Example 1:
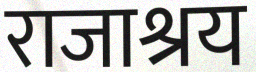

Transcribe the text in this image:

राजाश्रय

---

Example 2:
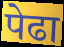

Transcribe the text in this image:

पेढा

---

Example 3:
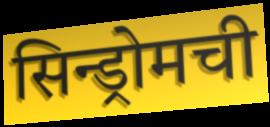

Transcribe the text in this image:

सिन्ड्रोमची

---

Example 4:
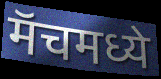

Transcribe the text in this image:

मॅचमध्ये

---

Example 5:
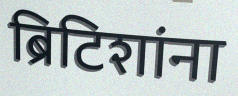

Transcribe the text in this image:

ब्रिटिशांना